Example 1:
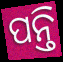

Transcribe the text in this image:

ପନ୍ତି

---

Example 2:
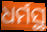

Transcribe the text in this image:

ଧର୍ମସ୍ଥ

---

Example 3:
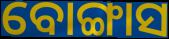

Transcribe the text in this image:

ବୋଙ୍ଗାସ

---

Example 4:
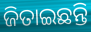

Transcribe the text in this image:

ଜିତାଇଛନ୍ତି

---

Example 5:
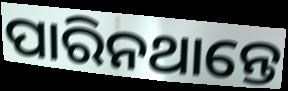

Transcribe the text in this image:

ପାରିନଥାନ୍ତେ